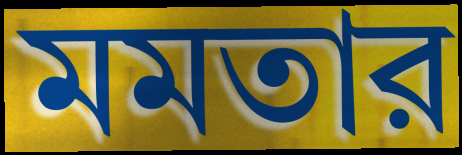
মমতার